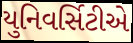
યુનિવર્સિટીએ